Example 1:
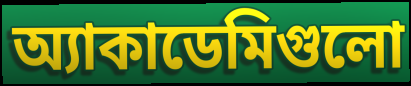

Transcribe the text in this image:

অ্যাকাডেমিগুলো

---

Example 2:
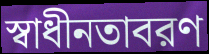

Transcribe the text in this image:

স্বাধীনতাবরণ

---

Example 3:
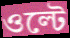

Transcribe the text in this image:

ওল্টে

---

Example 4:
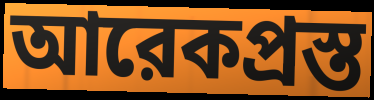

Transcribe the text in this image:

আরেকপ্রস্ত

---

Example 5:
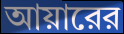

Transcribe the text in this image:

আয়ারের